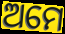
ଅମେ